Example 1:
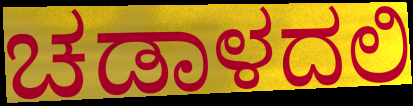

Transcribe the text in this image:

ಚಡಾಳದಲಿ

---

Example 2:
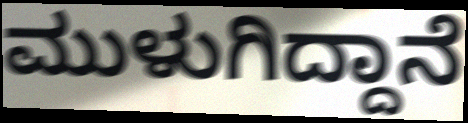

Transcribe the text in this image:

ಮುಳುಗಿದ್ದಾನೆ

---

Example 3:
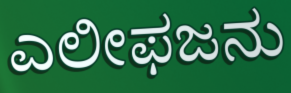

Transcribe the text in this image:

ಎಲೀಫಜನು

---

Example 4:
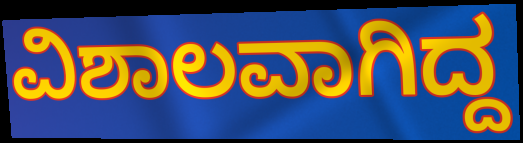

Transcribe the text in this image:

ವಿಶಾಲವಾಗಿದ್ದ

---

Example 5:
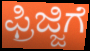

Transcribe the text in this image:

ಫ್ರಿಜ್ಜಿಗೆ